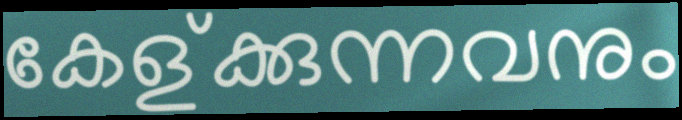
കേള്ക്കുന്നവനും